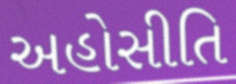
અહોસીતિ